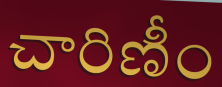
చారిణీం